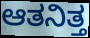
ಆತನಿತ್ತ